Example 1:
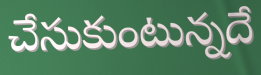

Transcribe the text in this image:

చేసుకుంటున్నదే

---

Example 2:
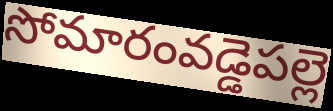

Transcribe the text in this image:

సోమారంవడ్డెపల్లె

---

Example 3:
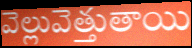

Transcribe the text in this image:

వెల్లువెత్తుతాయి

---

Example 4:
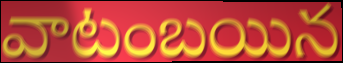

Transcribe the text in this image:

వాటంబయిన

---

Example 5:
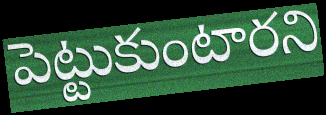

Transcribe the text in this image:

పెట్టుకుంటారని